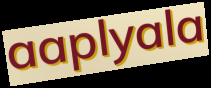
aaplyala